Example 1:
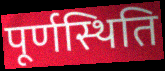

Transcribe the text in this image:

पूर्णस्थिति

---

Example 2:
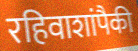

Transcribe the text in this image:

रहिवाशांपैकी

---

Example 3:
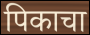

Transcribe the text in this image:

पिकाचा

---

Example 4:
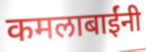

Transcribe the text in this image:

कमलाबाईंनी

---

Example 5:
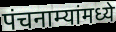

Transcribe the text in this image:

पंचनाम्यांमध्ये